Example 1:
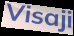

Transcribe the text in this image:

Visaji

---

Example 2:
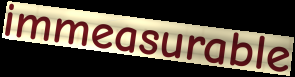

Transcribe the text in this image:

immeasurable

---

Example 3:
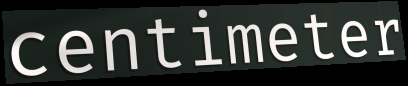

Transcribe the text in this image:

centimeter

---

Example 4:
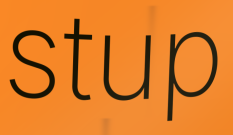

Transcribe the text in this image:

stup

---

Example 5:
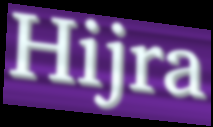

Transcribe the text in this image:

Hijra